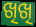
ଖିଖି